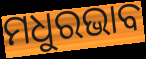
ମଧୁରଭାବ